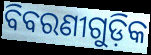
ବିବରଣୀଗୁଡ଼ିକ